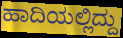
ಹಾದಿಯಲ್ಲಿದ್ದು